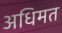
अधिमत